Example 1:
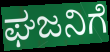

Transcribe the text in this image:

ಘಜನಿಗೆ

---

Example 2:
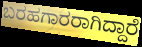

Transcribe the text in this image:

ಬರಹಗಾರರಾಗಿದ್ದಾರೆ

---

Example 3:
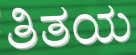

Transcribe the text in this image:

ತಿತಯ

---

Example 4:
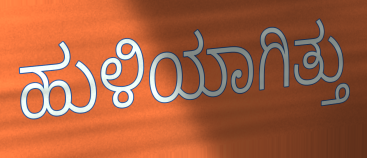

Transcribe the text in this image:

ಹುಳಿಯಾಗಿತ್ತು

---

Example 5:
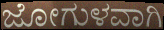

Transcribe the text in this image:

ಜೋಗುಳವಾಗಿ